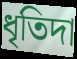
ধৃতিদা